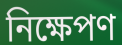
নিক্ষেপণ